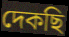
দেকছি